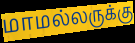
மாமல்லருக்கு